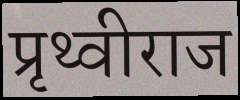
प्रृथ्वीराज